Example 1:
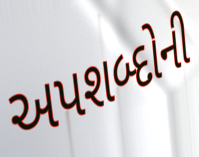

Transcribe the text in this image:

અપશબ્દોની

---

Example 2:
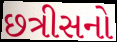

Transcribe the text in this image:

છત્રીસનો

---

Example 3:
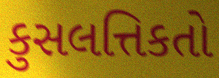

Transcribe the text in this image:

કુસલત્તિકતો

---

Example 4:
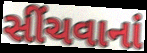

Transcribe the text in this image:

સીંચવાનાં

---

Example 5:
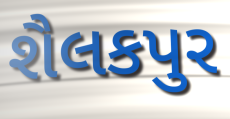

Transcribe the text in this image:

શૈલકપુર